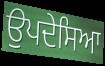
ਉਪਦੇਸਿਆ